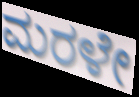
ಮರಳೇ